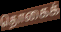
தொகைக்